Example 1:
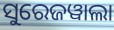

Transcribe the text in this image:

ସୁରେଜୱାଲା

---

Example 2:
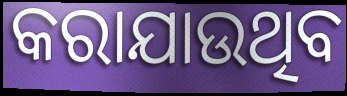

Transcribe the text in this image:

କରାଯାଉଥିବ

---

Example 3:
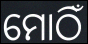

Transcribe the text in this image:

ମୋଠିଁ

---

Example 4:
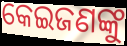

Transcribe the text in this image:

କେଇଜଣଙ୍କୁ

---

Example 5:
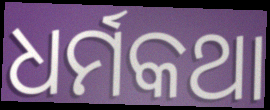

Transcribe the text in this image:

ଧର୍ମକଥା